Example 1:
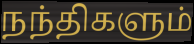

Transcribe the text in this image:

நந்திகளும்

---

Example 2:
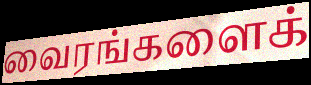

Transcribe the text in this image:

வைரங்களைக்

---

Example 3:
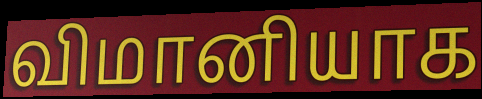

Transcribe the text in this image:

விமானியாக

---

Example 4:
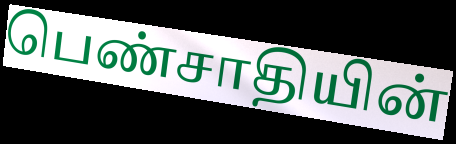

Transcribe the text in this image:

பெண்சாதியின்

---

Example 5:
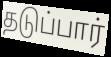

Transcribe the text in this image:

தடுப்பார்